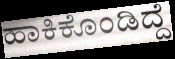
ಹಾಕಿಕೊಂಡಿದ್ದೆ